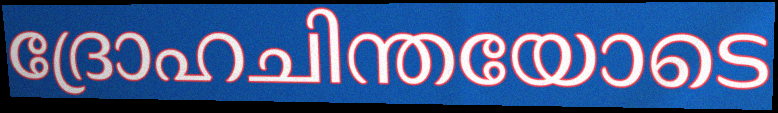
ദ്രോഹചിന്തയോടെ